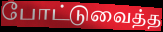
போட்டுவைத்த